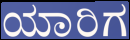
ಯಾರಿಗ